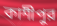
কাশীপুর